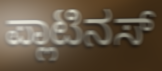
ಪ್ಲಾಟಿನಸ್